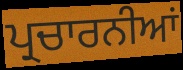
ਪ੍ਰਚਾਰਨੀਆਂ